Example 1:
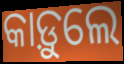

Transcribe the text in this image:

କାଡ଼ୁଲେ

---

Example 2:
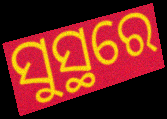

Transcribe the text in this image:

ସୁସ୍ଥରେ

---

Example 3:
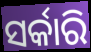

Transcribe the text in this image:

ସର୍କାରି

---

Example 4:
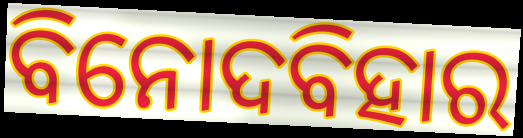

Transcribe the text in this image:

ବିନୋଦବିହାର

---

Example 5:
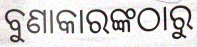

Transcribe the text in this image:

ବୁଣାକାରଙ୍କଠାରୁ